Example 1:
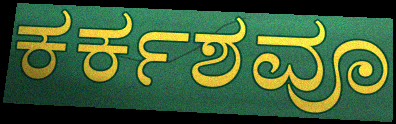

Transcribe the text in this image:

ಕರ್ಕಶವೂ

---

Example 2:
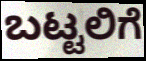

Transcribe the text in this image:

ಬಟ್ಟಲಿಗೆ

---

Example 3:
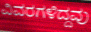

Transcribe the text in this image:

ವಿವರಗಳಿದ್ದವು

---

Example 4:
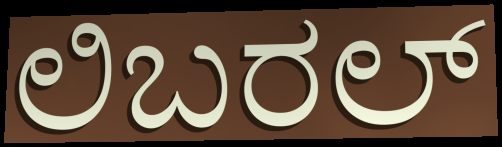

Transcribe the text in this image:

ಲಿಬರಲ್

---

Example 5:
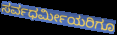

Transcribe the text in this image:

ಸರ್ವಧರ್ಮೀಯರಿಗೂ